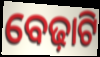
ବେଢ଼ାଟି